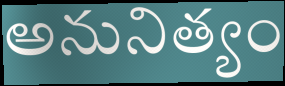
అనునిత్యం